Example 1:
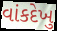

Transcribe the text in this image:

વાંકદેખુ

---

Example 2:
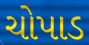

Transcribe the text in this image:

ચોપાડ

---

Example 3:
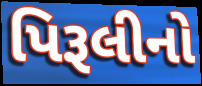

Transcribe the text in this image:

પિરૂલીનો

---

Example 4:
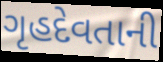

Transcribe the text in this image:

ગૃહદેવતાની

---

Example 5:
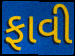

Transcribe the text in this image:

ફાવી